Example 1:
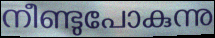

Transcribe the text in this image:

നീണ്ടുപോകുന്നു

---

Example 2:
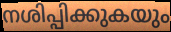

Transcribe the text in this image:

നശിപ്പിക്കുകയും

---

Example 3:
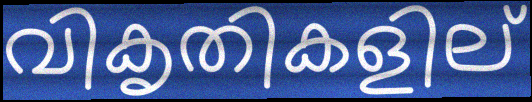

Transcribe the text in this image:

വികൃതികളില്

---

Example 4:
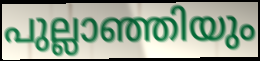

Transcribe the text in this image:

പുല്ലാഞ്ഞിയും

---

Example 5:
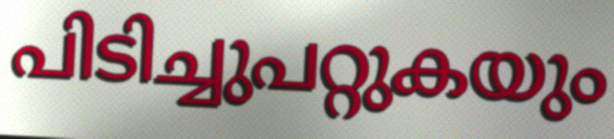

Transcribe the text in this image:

പിടിച്ചുപറ്റുകയും